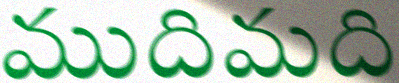
ముదిమది